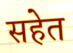
सहेत